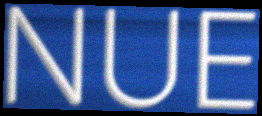
NUE